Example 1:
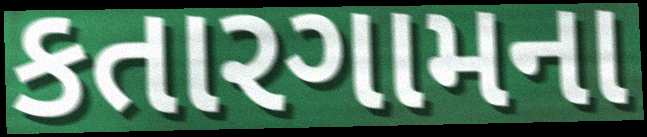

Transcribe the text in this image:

કતારગામના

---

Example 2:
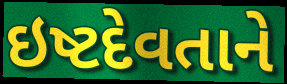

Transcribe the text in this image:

ઇષ્ટદેવતાને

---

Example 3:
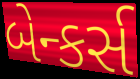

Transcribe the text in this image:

બેન્કર્સ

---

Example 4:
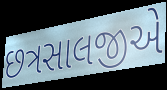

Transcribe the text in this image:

છત્રસાલજીએ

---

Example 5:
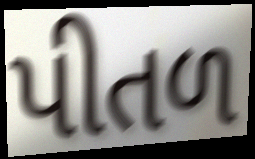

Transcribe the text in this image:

પીતળ